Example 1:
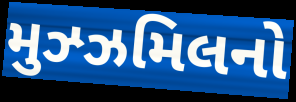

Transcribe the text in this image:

મુઝ્ઝમિલનો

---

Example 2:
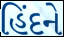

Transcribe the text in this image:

હિંદને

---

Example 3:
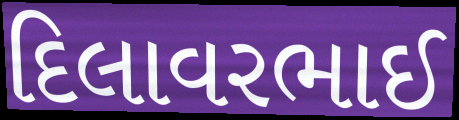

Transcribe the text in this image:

દિલાવરભાઈ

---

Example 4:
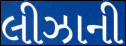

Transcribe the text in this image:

લીઝાની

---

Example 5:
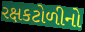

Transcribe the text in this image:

રક્ષકટોળીનો